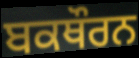
ਬਕਥੌਰਨ